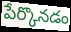
పేర్కొనడం